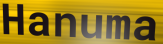
Hanuma